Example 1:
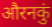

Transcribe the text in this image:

औरनकुं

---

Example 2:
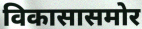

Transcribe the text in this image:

विकासासमोर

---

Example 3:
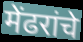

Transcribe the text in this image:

मेंढरांचे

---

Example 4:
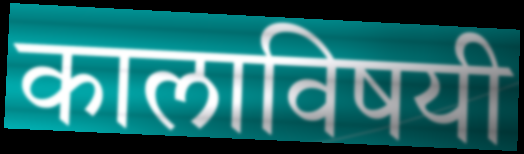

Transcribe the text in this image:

कालाविषयी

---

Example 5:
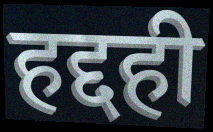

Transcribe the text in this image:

हद्दही